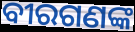
ବୀରଗଣଙ୍କ